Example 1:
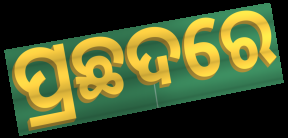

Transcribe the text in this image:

ପ୍ରଛଦରେ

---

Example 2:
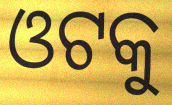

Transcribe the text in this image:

ଓଟକୁ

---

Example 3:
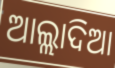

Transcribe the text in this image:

ଆଲ୍ଲାଦିଆ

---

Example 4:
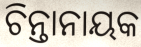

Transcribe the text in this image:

ଚିନ୍ତାନାୟକ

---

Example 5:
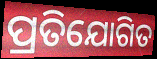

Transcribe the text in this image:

ପ୍ରତିଯୋଗିତ